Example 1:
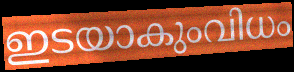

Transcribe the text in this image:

ഇടയാകുംവിധം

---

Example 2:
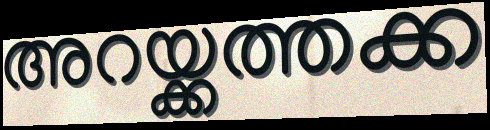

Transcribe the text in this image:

അറയ്ക്കത്തക്ക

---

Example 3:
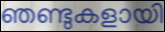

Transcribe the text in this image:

ഞണ്ടുകളായി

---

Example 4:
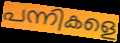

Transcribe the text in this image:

പന്നികളെ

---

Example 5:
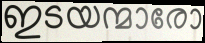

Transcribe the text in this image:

ഇടയന്മാരോ